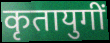
कृतायुगीं